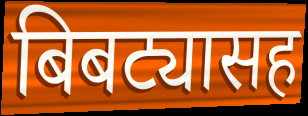
बिबट्यासह